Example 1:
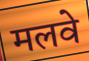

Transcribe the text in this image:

मलवे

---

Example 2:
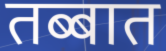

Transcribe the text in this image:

तब्बात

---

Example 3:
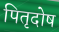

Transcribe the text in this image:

पितृदोष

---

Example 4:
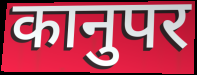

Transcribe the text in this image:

कानुपर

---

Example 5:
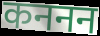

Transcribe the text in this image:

कननन